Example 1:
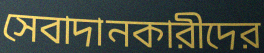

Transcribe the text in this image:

সেবাদানকারীদের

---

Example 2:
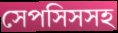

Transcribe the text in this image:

সেপসিসসহ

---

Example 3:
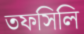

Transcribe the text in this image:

তফসিলি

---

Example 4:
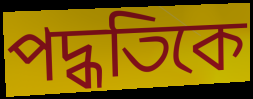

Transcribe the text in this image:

পদ্ধতিকে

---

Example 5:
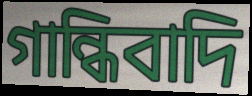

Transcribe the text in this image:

গান্ধিবাদি